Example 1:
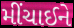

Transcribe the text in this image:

મીંચાઈને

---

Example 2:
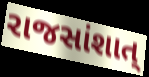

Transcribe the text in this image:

રાજસાંશાત્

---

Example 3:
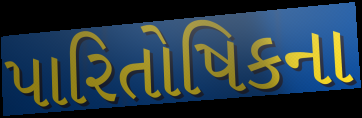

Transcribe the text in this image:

પારિતોષિકના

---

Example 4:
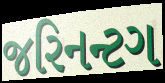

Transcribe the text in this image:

જરિનન્ટગ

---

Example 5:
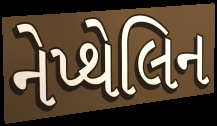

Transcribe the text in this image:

નેપ્થેલિન